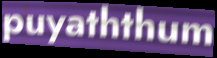
puyaththum